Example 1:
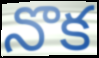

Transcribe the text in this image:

నొక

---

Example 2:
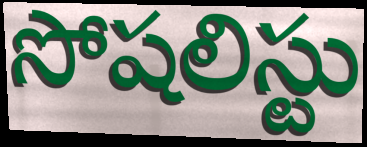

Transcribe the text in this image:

సోషలిస్టు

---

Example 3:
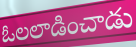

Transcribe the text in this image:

ఓలలాడించాడు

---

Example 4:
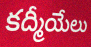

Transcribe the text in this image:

కద్మీయేలు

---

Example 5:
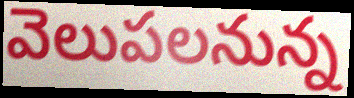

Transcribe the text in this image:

వెలుపలనున్న